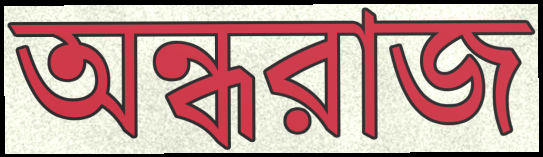
অন্ধরাজ